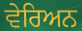
ਵੇਰਿਅਨ